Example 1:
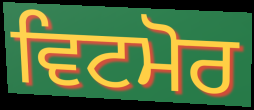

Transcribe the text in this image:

ਵਿਟਮੋਰ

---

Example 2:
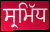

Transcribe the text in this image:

ਸ੍ਰਮਿੱਧ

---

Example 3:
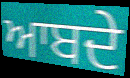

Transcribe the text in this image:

ਆਬਦੇ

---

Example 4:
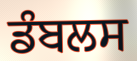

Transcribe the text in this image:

ਡੰਬਲਸ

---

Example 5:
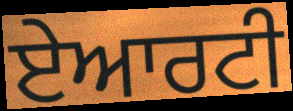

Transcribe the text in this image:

ਏਆਰਟੀ